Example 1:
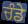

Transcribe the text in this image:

ਚੰਡੇ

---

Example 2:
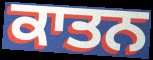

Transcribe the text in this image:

ਕਾਤਨ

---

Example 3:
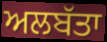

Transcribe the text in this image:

ਅਲਬੱਤਾ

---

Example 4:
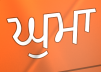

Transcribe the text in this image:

ਘੁਮਾ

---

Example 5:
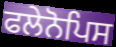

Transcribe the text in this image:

ਫਲੇਨੋਪਿਸ